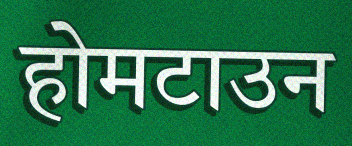
होमटाउन